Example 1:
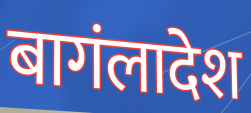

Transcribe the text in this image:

बागंलादेश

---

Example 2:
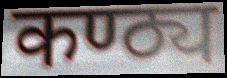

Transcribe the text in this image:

कण्ठ्य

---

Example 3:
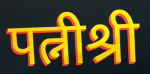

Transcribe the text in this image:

पत्नीश्री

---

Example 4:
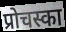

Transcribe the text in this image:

प्रोचस्का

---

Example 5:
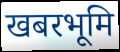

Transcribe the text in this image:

खबरभूमि